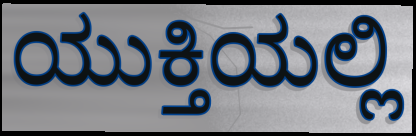
ಯುಕ್ತಿಯಲ್ಲಿ